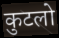
कुटलो